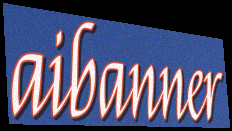
aibanner